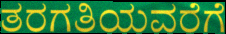
ತರಗತಿಯವರೆಗೆ